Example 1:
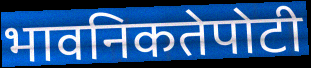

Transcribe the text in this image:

भावनिकतेपोटी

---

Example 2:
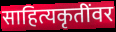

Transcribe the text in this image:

साहित्यकृतींवर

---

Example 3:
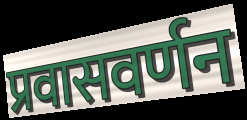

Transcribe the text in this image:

प्रवासवर्णन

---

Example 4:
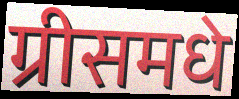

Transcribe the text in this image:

ग्रीसमधे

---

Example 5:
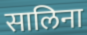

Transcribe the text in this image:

सालिना